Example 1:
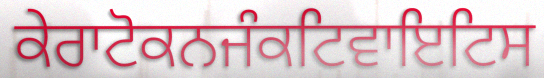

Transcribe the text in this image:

ਕੇਰਾਟੋਕਨਜੰਕਟਿਵਾਇਟਿਸ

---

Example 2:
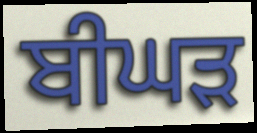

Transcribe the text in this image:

ਬੀਘੜ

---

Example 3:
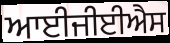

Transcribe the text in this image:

ਆਈਜੀਈਐਸ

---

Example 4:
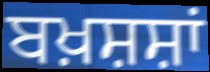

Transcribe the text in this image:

ਬਖ਼ਸ਼ਸ਼ਾਂ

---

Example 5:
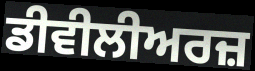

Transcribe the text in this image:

ਡੀਵੀਲੀਅਰਜ਼